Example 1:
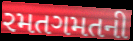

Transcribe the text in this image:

રમતગમતની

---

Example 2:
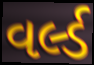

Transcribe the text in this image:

વર્લ્ડ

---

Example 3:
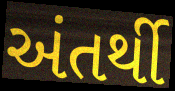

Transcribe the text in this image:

અંતર્થી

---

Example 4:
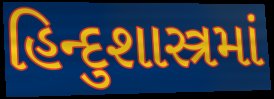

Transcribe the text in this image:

હિન્દુશાસ્ત્રમાં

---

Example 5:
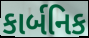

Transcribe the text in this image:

કાર્બનિક